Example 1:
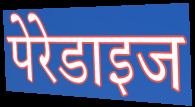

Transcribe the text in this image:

पेरेडाइज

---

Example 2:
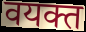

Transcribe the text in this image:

वयक्त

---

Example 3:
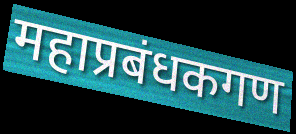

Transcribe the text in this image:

महाप्रबंधकगण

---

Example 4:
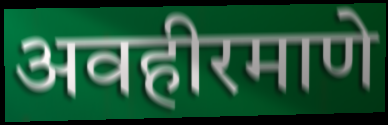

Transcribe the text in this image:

अवहीरमाणे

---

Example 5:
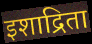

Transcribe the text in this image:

इशाद्रिता